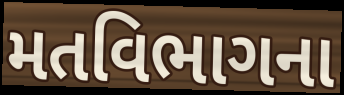
મતવિભાગના